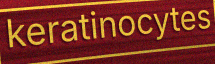
keratinocytes